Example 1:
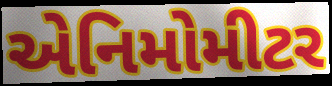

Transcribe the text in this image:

એનિમોમીટર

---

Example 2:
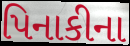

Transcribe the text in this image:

પિનાકીના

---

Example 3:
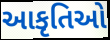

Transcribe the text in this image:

આકૃતિઓ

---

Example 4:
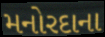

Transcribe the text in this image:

મનોરદાના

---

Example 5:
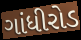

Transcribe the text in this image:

ગાંધીરોડ